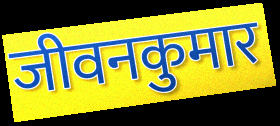
जीवनकुमार